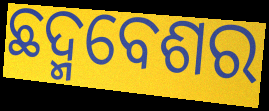
ଛଦ୍ମବେଶର